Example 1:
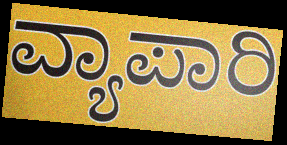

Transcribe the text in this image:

ವ್ಯಾಪಾರಿ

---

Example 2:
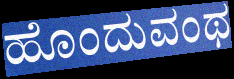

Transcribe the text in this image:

ಹೊಂದುವಂಥ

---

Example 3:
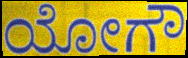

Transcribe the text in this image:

ಯೋಗೌ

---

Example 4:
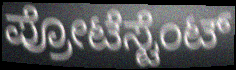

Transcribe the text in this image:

ಪ್ರೋಟೆಸ್ಟೆಂಟ್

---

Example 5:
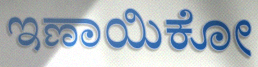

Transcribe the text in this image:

ಇಣಾಯಿಕೋ